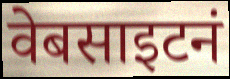
वेबसाइटनं